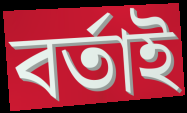
বৰ্তাই